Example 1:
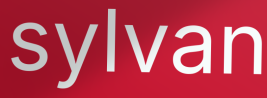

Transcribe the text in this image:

sylvan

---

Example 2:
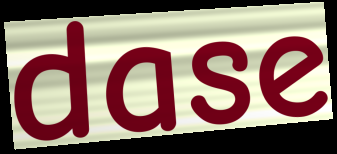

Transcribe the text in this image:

dase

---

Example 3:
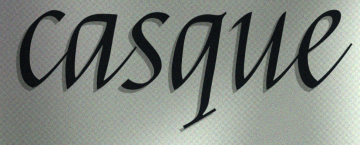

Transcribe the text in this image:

casque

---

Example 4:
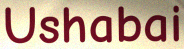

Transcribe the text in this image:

Ushabai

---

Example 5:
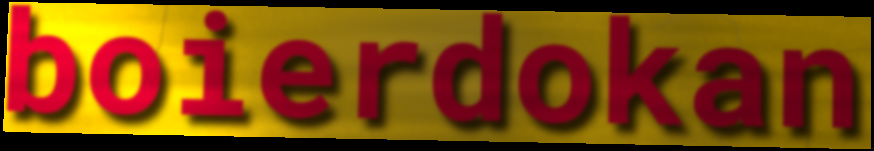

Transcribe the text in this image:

boierdokan